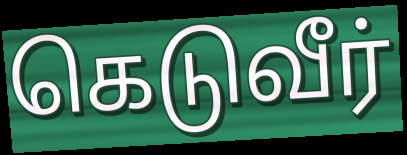
கெடுவீர்